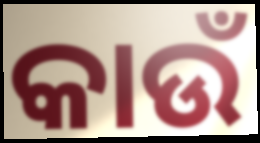
କାଉଁ